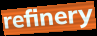
refinery